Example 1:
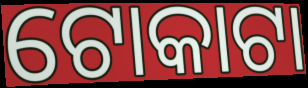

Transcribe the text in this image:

ଟୋକାଟା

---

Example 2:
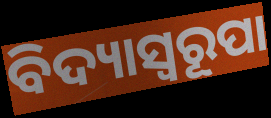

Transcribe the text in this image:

ବିଦ୍ୟାସ୍ୱରୂପା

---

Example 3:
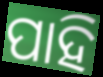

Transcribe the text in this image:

ପାହି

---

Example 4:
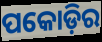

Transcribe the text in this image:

ପକୋଡ଼ିର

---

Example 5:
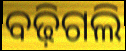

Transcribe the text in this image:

ବଢ଼ିଗଲି